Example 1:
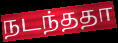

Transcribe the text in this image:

நடந்ததா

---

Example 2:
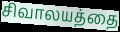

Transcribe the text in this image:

சிவாலயத்தை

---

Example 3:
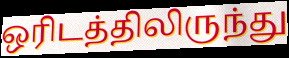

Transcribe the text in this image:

ஒரிடத்திலிருந்து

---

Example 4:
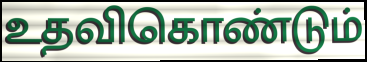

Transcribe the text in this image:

உதவிகொண்டும்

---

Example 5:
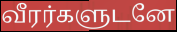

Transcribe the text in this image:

வீரர்களுடனே